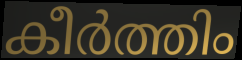
കീർത്തിം